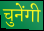
चुनेंगी